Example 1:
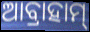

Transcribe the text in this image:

ଆବ୍ରାହାମ୍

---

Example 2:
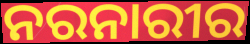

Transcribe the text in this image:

ନରନାରୀର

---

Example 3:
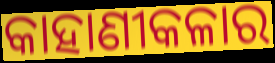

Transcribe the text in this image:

କାହାଣୀକଳାର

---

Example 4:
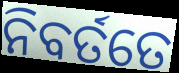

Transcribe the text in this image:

ନିବର୍ତତେ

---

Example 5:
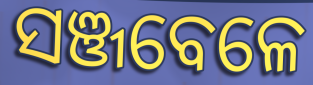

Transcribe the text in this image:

ସଞ୍ଜବେଳେ